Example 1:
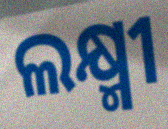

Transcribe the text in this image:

ଲକ୍ଷ୍ମୀ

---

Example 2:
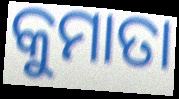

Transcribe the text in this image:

କୁମାତା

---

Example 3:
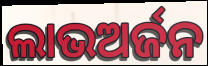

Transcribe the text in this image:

ଲାଭଅର୍ଜନ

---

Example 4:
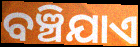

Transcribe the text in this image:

ବଞ୍ଚିଯାଏ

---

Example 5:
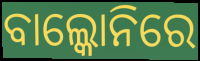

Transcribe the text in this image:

ବାଲ୍କୋନିରେ